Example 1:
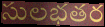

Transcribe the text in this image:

సులభతర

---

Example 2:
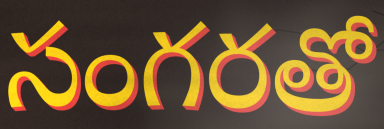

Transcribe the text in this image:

సంగరతో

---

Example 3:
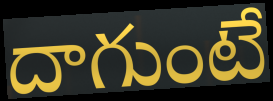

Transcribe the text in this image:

దాగుంటే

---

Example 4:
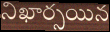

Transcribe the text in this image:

నిఖార్సయిన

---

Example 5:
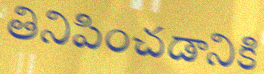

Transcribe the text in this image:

తినిపించడానికి